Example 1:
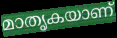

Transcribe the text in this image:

മാതൃകയാണ്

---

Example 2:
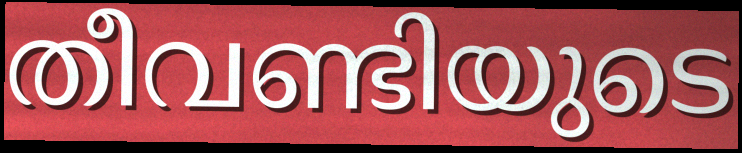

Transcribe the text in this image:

തീവണ്ടിയുടെ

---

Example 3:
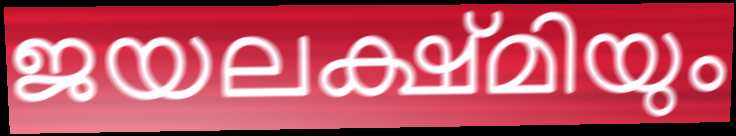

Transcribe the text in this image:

ജയലക്ഷ്മിയും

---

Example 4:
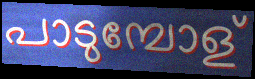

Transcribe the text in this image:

പാടുമ്പോള്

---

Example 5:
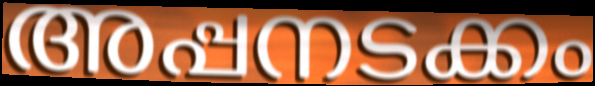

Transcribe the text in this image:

അപ്പനടക്കം